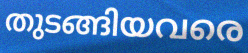
തുടങ്ങിയവരെ